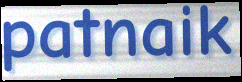
patnaik